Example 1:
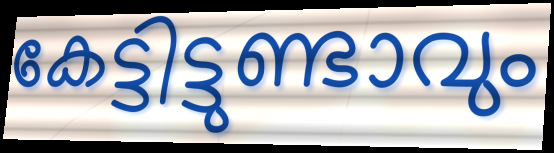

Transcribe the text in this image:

കേട്ടിട്ടുണ്ടാവും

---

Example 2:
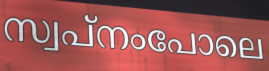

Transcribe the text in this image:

സ്വപ്നംപോലെ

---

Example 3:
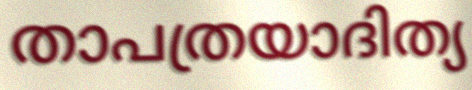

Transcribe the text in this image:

താപത്രയാദിത്യ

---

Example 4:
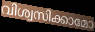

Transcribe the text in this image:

വിശ്വസിക്കാമോ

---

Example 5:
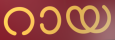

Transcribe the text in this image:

റായ